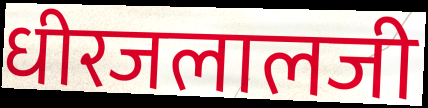
धीरजलालजी